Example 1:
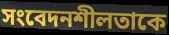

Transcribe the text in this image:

সংবেদনশীলতাকে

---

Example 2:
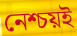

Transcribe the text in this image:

নেশ্চয়ই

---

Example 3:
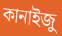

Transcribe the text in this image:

কানাইজু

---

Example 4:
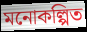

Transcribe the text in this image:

মনোকল্পিত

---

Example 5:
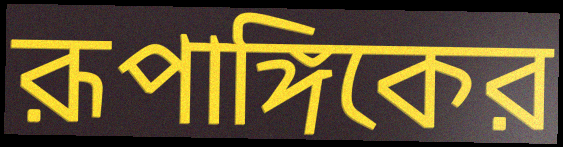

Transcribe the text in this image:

রূপাঙ্গিকের